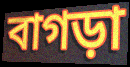
বাগড়া